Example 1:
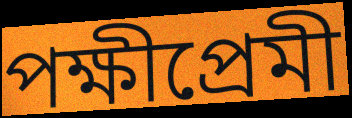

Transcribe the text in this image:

পক্ষীপ্রেমী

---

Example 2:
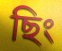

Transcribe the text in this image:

ছিং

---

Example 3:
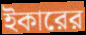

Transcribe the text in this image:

ইকারের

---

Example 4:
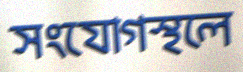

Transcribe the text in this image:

সংযোগস্থলে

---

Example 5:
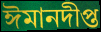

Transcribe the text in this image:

ঈমানদীপ্ত